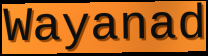
Wayanad